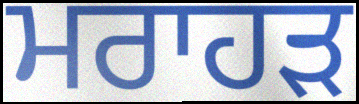
ਮਰਾਹੜ